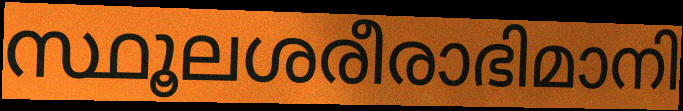
സ്ഥൂലശരീരാഭിമാനി